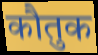
कौतुक